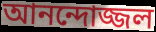
আনন্দোজ্জল